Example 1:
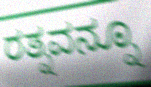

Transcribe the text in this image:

ರತ್ನವನ್ನೂ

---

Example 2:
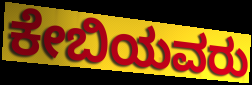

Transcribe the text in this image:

ಕೇಬಿಯವರು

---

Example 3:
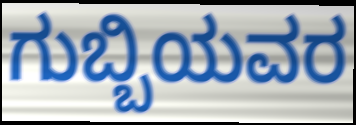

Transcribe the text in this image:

ಗುಬ್ಬಿಯವರ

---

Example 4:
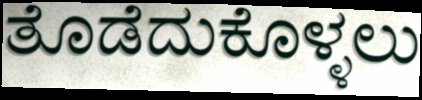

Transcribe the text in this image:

ತೊಡೆದುಕೊಳ್ಳಲು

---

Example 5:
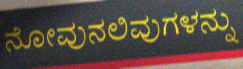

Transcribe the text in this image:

ನೋವುನಲಿವುಗಳನ್ನು